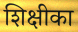
शिक्षीका